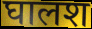
घालश